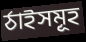
ঠাইসমূহ